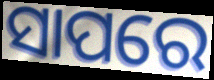
ସାପରେ